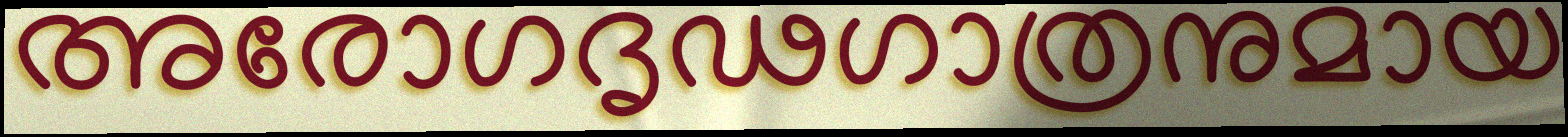
അരോഗദൃഢഗാത്രനുമായ